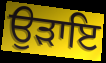
ਉੜਾਇ